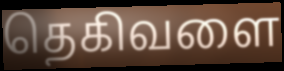
தெகிவளை